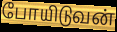
போயிடுவன்